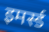
इमर्स्ड